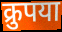
क्रुपया